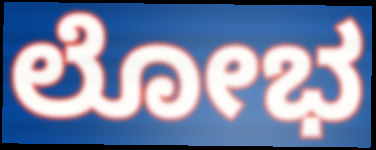
ಲೋಭ